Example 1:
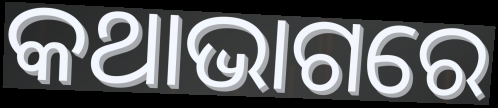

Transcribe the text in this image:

କଥାଭାଗରେ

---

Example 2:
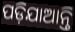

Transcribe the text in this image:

ପଡ଼ିଯାଆନ୍ତି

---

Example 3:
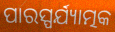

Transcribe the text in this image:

ପାରସ୍ପର୍ଯ୍ୟାତ୍ମକ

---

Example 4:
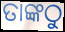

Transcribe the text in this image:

ତାଙ୍କଠୁ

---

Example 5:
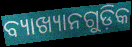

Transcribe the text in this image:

ବ୍ୟାଖ୍ୟାନଗୁଡ଼ିକ